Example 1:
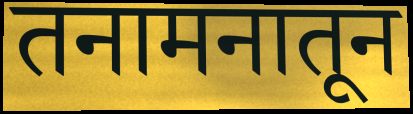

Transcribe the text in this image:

तनामनातून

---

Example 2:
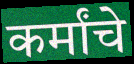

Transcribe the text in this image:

कर्मांचे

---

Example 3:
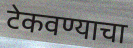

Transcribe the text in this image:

टेकवण्याचा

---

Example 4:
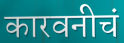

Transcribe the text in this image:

कारवनीचं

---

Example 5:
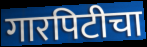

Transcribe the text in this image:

गारपिटीचा